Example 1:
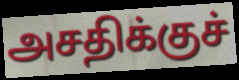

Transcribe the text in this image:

அசதிக்குச்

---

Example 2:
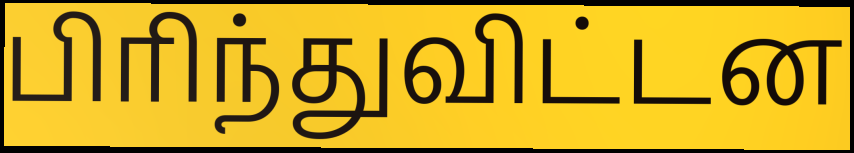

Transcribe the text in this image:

பிரிந்துவிட்டன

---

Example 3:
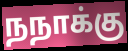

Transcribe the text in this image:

நநாக்கு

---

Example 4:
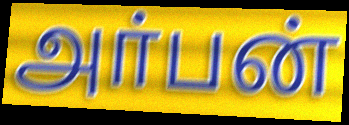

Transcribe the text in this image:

அர்பன்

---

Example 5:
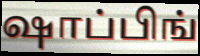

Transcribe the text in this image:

ஷாப்பிங்